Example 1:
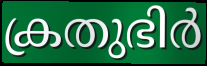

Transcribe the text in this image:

ക്രതുഭിർ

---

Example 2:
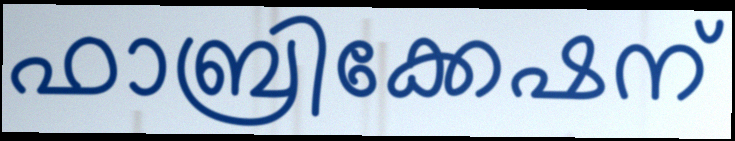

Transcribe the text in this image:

ഫാബ്രിക്കേഷന്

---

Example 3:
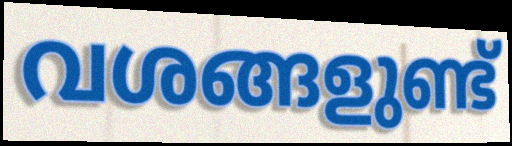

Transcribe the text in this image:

വശങ്ങളുണ്ട്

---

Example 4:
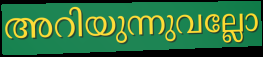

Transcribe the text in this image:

അറിയുന്നുവല്ലോ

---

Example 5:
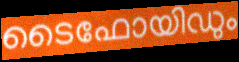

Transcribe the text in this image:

ടൈഫോയിഡും